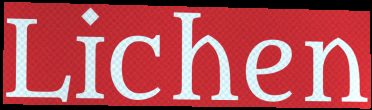
Lichen